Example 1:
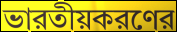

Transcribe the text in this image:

ভারতীয়করণের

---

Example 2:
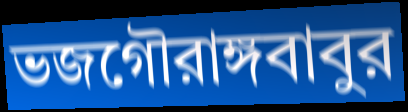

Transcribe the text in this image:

ভজগৌরাঙ্গবাবুর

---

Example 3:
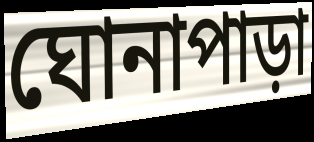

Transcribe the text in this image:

ঘোনাপাড়া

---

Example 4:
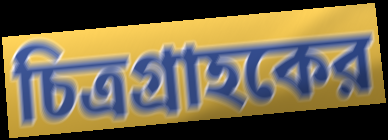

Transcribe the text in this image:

চিত্রগ্রাহকের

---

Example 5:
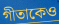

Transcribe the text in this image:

গীতাকেও